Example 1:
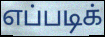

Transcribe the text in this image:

எப்படிக்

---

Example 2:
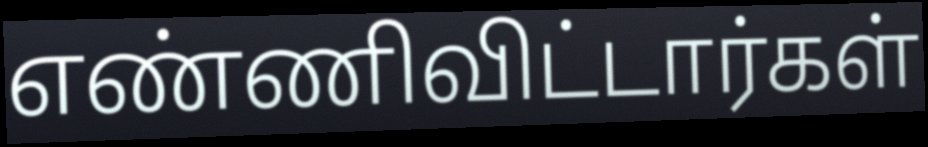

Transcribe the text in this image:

எண்ணிவிட்டார்கள்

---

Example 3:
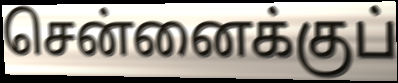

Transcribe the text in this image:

சென்னைக்குப்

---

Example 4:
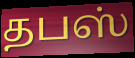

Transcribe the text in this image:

தபஸ்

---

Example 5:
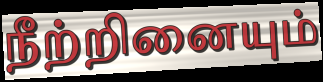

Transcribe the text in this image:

நீற்றினையும்